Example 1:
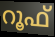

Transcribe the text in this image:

റൂഫ്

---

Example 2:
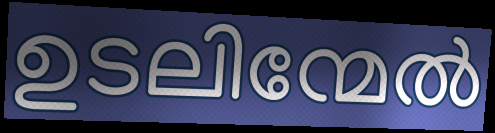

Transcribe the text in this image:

ഉടലിന്മേൽ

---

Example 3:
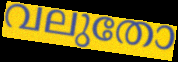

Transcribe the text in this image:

വലുതോ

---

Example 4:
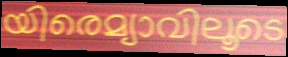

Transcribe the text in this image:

യിരെമ്യാവിലൂടെ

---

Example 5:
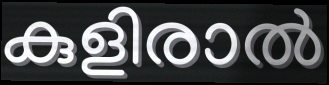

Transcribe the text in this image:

കുളിരാൽ